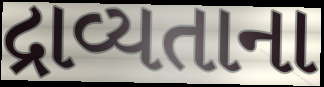
દ્રાવ્યતાના